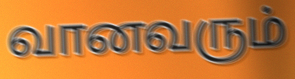
வானவரும்